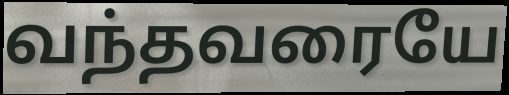
வந்தவரையே